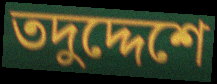
তদুদ্দেশে